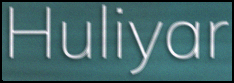
Huliyar